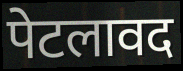
पेटलावद